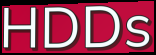
HDDs